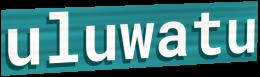
uluwatu